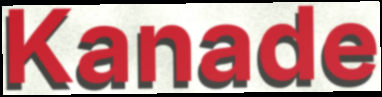
Kanade